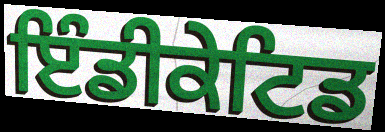
ਇੰਡੀਕੇਟਿਡ